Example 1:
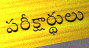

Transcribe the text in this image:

పరీక్షార్థులు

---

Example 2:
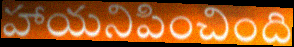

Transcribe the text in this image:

హాయనిపించింది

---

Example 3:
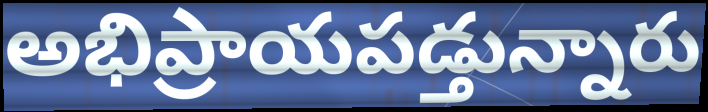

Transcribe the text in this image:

అభిప్రాయపడ్తున్నారు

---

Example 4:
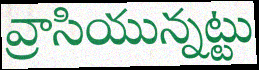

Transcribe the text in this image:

వ్రాసియున్నట్టు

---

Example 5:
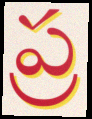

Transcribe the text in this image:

ప్ర